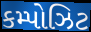
કમ્પોઝિટ